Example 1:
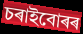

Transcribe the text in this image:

চৰাইবোৰৰ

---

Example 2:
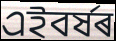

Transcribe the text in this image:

এইবৰ্ষৰ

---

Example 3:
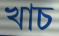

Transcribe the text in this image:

খাচ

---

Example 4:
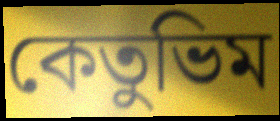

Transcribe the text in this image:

কেতুভিম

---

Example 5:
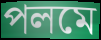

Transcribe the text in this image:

পলমে